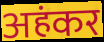
अहंकर